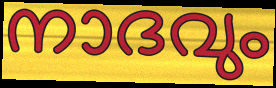
നാദവും